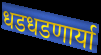
धडधडणार्या